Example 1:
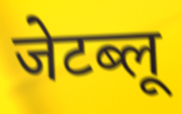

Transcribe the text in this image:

जेटब्लू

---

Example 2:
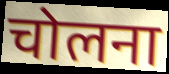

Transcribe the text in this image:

चोलना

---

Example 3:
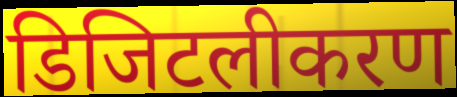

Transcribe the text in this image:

डिजिटलीकरण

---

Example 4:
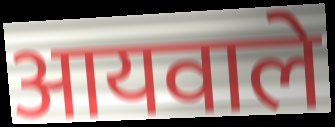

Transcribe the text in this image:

आयवाले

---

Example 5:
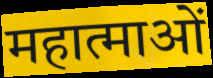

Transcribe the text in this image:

महात्‍माओं